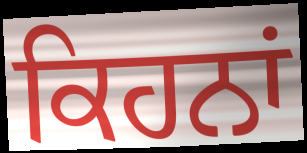
ਕਿਹਨਾਂ